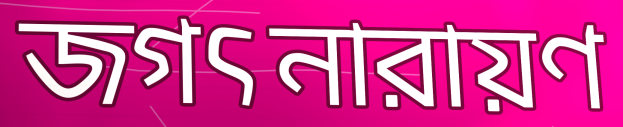
জগৎনারায়ণ